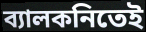
ব্যালকনিতেই